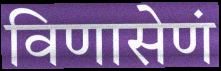
विणासेणं